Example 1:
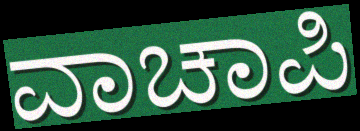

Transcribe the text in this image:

ವಾಚಾಪಿ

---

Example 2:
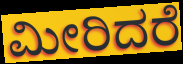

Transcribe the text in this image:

ಮೀರಿದರೆ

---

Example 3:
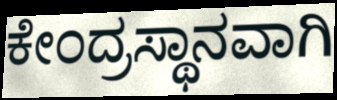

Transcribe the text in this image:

ಕೇಂದ್ರಸ್ಥಾನವಾಗಿ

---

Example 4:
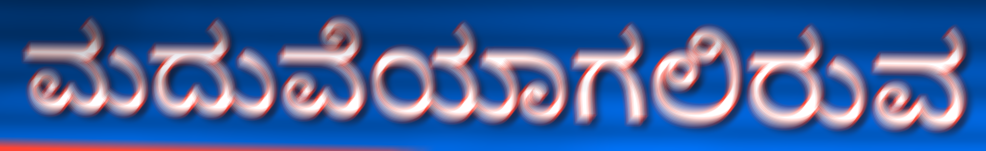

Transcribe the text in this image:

ಮದುವೆಯಾಗಲಿರುವ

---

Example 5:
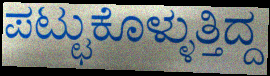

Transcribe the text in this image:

ಪಟ್ಟುಕೊಳ್ಳುತ್ತಿದ್ದ